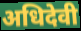
अधिदेवी